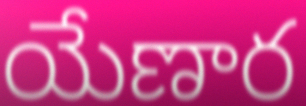
యేణార